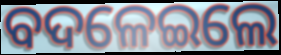
ବଦଳେଇଲେ